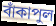
বাঁকাপুল